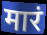
मारं